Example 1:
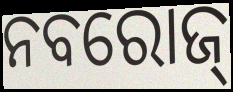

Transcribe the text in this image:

ନବରୋଜ୍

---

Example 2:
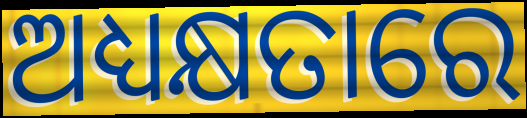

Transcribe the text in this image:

ଅଧ୍ଯକ୍ଷତାରେ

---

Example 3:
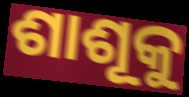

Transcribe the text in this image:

ଶାଶୂକୁ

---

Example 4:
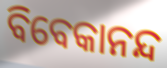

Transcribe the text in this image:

ବିବେକାନନ୍ଦ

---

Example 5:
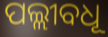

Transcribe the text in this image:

ପଲ୍ଲୀବଧୂ